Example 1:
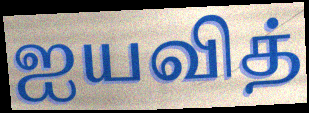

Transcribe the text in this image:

ஐயவித்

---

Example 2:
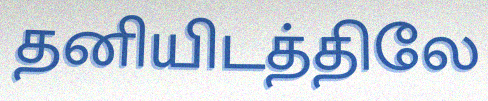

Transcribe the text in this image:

தனியிடத்திலே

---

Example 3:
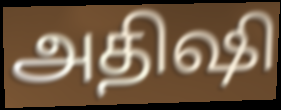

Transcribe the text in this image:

அதிஷி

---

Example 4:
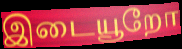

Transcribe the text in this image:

இடையூறோ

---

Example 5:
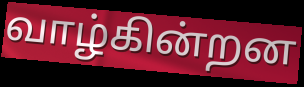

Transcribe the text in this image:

வாழ்கின்றன